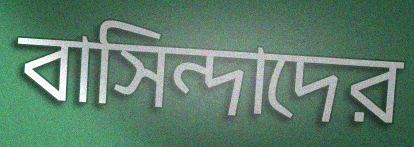
বাসিন্দাদের